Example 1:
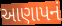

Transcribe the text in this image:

આણાપનં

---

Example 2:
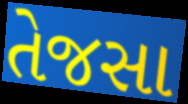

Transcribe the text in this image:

તેજસા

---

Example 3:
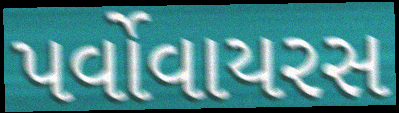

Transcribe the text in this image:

પર્વોવાયરસ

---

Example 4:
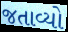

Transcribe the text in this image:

જતાવ્યો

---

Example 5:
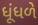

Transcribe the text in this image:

ધૂંધળે